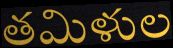
తమిళుల